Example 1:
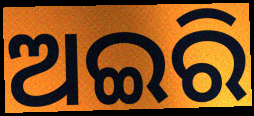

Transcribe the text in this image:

ଅଇରି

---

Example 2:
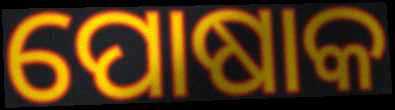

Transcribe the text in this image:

ପୋଷାକ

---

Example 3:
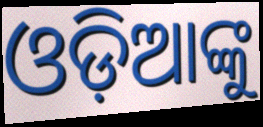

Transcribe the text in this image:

ଓଡ଼ିଆଙ୍କୁ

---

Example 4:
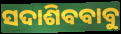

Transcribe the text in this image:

ସଦାଶିବବାବୁ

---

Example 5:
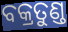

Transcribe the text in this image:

ବକ୍ରତୁଣ୍ଡ